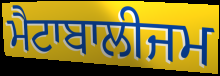
ਮੈਟਾਬਾਲੀਜਮ